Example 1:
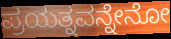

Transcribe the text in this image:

ಪ್ರಯತ್ನವನ್ನೇನೋ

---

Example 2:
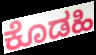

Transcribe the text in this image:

ಕೊಡಹಿ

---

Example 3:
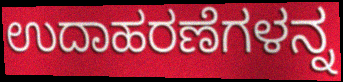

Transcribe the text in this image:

ಉದಾಹರಣೆಗಳನ್ನ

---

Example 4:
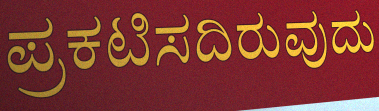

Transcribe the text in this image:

ಪ್ರಕಟಿಸದಿರುವುದು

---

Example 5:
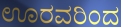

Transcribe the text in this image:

ಊರವರಿಂದ